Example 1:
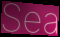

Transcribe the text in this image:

Sea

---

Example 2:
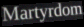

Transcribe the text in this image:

Martyrdom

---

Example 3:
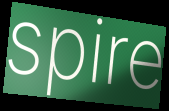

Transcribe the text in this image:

spire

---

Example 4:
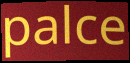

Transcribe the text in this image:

palce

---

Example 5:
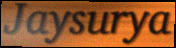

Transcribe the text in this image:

Jaysurya